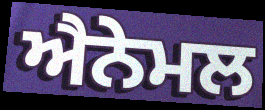
ਐਨੇਮਲ